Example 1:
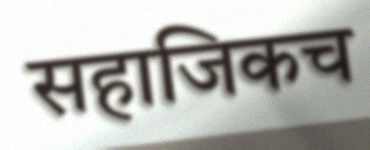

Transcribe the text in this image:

सहाजिकच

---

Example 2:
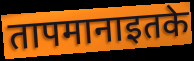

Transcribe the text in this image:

तापमानाइतके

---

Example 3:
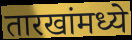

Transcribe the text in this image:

तारखांमध्ये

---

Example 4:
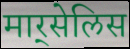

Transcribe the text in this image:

मार्सेलिस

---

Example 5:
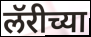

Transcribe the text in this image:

लॅरीच्या